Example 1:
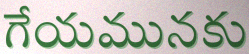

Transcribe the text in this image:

గేయమునకు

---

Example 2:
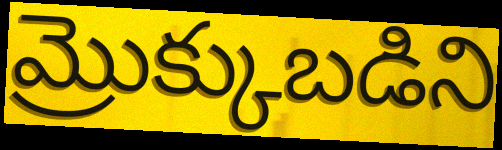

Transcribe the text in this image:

మ్రొక్కుబడిని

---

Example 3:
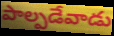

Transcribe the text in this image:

పాల్పడేవాడు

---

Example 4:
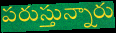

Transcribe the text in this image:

పరుస్తున్నారు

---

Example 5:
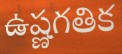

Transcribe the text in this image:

ఉష్ణగతిక